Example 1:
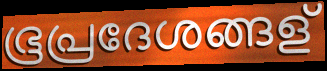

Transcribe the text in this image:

ഭൂപ്രദേശങ്ങള്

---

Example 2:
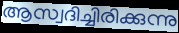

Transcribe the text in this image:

ആസ്വദിച്ചിരിക്കുന്നു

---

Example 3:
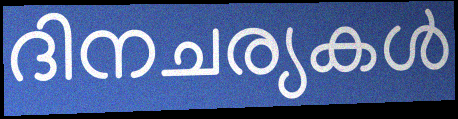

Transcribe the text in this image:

ദിനചര്യകൾ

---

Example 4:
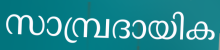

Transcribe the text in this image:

സാമ്പ്രദായിക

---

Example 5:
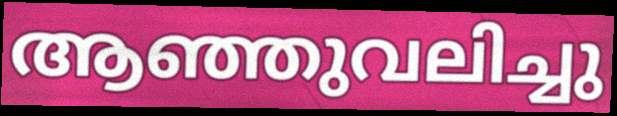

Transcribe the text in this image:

ആഞ്ഞുവലിച്ചു